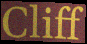
Cliff